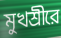
মুখশ্রীরে